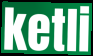
ketli